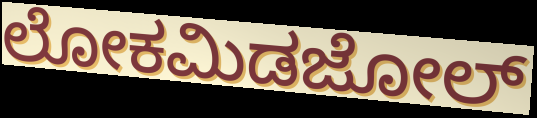
ಲೋಕಮಿಡಜೋಲ್